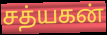
சத்யகன்